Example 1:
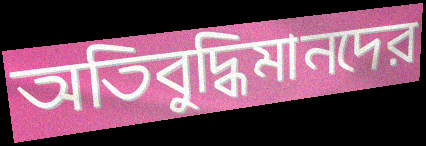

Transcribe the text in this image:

অতিবুদ্ধিমানদের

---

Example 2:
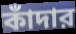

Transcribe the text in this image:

কাঁদার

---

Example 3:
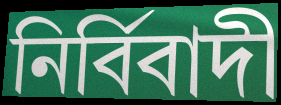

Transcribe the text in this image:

নির্বিবাদী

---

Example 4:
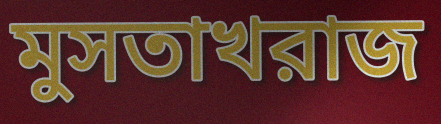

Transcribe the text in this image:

মুসতাখরাজ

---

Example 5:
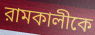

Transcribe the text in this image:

রামকালীকে